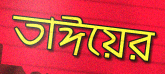
তাঈয়ের